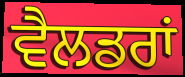
ਵੈਲਡਰਾਂ